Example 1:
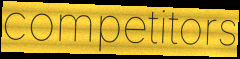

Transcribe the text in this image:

competitors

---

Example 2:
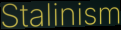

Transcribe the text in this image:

Stalinism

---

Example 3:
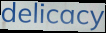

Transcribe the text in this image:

delicacy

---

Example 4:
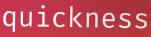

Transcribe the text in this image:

quickness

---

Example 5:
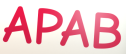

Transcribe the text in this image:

APAB